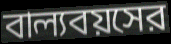
বাল্যবয়সের